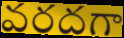
వరదగా